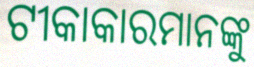
ଟୀକାକାରମାନଙ୍କୁ